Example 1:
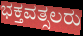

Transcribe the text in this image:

ಭಕ್ತವತ್ಸಲರು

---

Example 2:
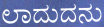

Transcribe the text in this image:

ಲಾದುದನು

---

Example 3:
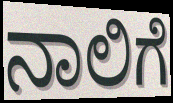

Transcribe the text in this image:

ನಾಲಿಗೆ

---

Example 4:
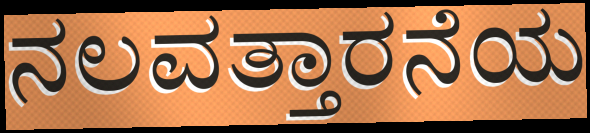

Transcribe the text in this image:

ನಲವತ್ತಾರನೆಯ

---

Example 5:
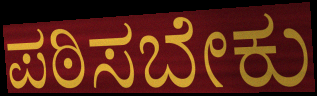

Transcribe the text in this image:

ಪಠಿಸಬೇಕು